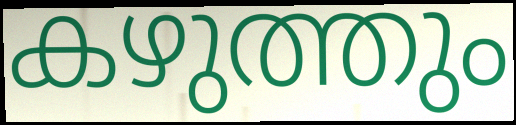
കഴുത്തും